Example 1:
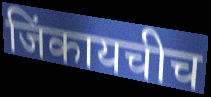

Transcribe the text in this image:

जिंकायचीच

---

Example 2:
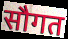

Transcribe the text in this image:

सौगत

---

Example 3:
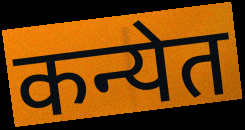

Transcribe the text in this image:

कन्येत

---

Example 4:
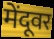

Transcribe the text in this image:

मेंदूवर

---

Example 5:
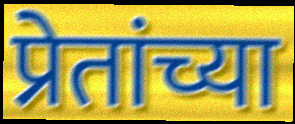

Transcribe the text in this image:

प्रेतांच्या